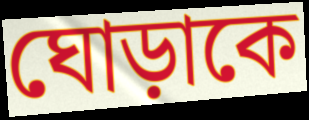
ঘোড়াকে